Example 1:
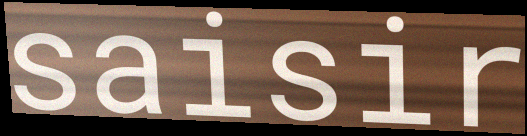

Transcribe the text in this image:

saisir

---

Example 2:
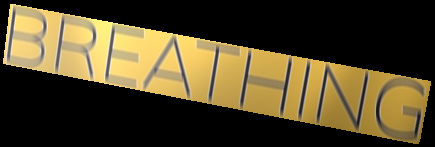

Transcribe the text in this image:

BREATHING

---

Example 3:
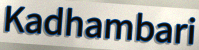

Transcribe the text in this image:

Kadhambari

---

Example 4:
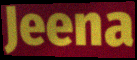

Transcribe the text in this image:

Jeena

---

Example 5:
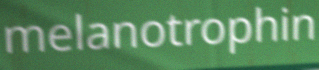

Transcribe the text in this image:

melanotrophin